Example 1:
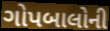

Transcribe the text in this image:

ગોપબાલોની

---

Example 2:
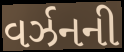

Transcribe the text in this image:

વર્ઝનની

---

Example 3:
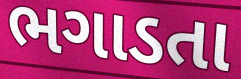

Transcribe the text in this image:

ભગાડતા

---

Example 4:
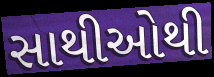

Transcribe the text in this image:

સાથીઓથી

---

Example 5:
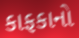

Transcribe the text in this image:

કાફકાનો